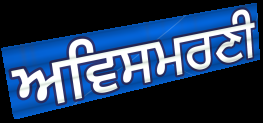
ਅਵਿਸਮਰਣੀ